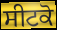
ਸੀਟਕੋ